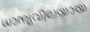
ധാന്യവിലയായ